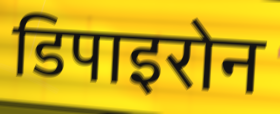
डिपाइरोन